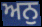
ਅਨੁ